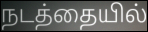
நடத்தையில்